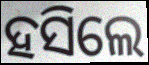
ହସିଲେ